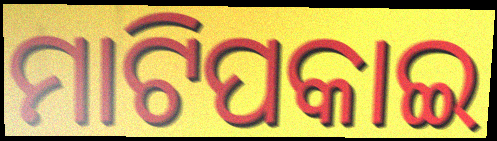
ମାଟିପକାଇ